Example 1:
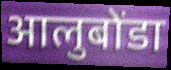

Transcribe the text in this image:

आलुबोंडा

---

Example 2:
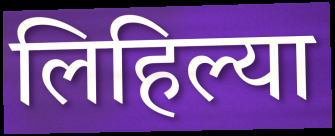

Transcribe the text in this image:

लिहिल्या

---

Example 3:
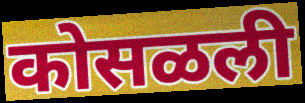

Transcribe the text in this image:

कोसळली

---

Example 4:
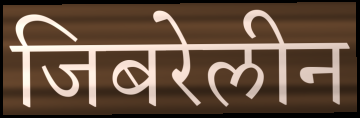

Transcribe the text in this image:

जिबरेलीन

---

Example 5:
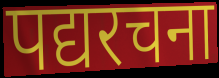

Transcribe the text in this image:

पद्यरचना